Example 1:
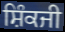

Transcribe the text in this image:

ਸ਼ਿੰਕਜੀ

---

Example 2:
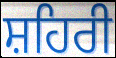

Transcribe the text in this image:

ਸ਼ਹਿਰੀ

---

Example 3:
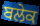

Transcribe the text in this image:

ਬਲੇਕ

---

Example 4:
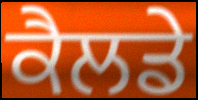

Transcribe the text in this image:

ਕੈਲਡੇ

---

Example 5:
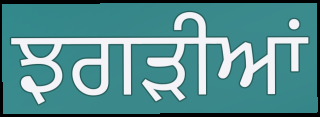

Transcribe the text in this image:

ਝਗੜੀਆਂ